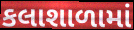
કલાશાળામાં